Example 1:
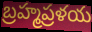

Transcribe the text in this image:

బ్రహ్మప్రళయ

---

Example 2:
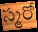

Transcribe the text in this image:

స్మరో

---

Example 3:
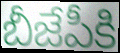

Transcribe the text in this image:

బీజేపీకి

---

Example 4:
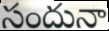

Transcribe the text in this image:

సందునా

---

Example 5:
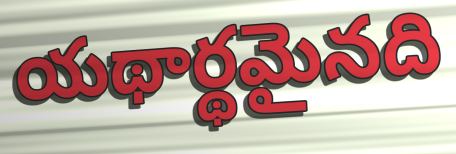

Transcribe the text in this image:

యథార్థమైనది